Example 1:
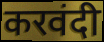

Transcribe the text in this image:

करवंदी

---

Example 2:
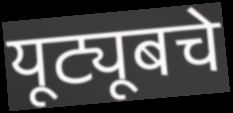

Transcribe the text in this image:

यूट्यूबचे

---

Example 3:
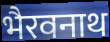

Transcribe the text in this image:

भैरवनाथ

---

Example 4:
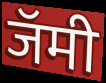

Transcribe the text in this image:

जॅमी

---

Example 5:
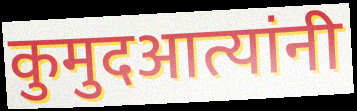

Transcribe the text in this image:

कुमुदआत्यांनी